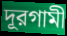
দূরগামী